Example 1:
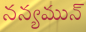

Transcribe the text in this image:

నన్యమున్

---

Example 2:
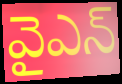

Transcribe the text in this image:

వైఎన్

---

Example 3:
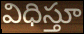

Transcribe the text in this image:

విధిస్తూ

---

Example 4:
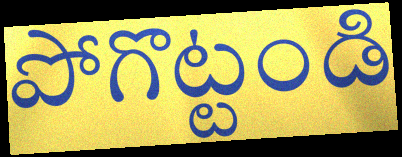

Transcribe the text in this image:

పోగొట్టండి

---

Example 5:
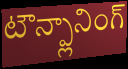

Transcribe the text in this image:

టౌన్ప్లానింగ్